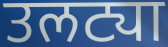
उलट्या